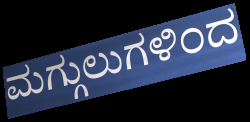
ಮಗ್ಗುಲುಗಳಿಂದ